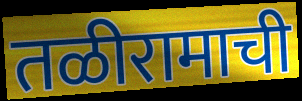
तळीरामाची